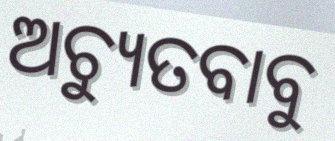
ଅଚ୍ୟୁତବାବୁ